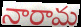
నారామ